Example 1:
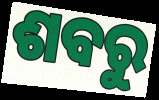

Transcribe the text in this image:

ଶବରୁ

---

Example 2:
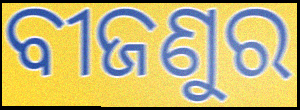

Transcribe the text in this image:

ବୀଜଣୁର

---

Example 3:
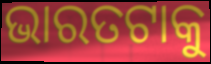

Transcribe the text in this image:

ଭାରତଟାକୁ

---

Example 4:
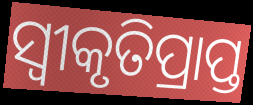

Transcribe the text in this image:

ସ୍ୱୀକୃତିପ୍ରାପ୍ତ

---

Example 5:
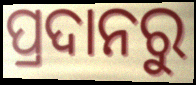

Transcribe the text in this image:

ପ୍ରଦାନରୁ